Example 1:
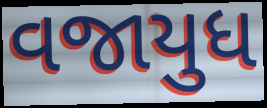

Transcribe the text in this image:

વજાયુધ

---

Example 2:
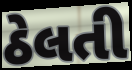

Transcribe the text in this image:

ઠેલતી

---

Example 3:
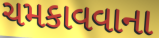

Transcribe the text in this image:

ચમકાવવાના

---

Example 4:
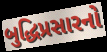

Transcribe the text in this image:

બુદ્ધિપ્રસારનો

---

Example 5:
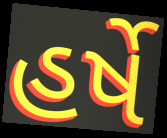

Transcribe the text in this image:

હર્ષે